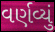
વર્ણવ્યું